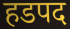
हडपद